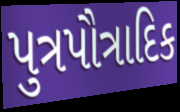
પુત્રપૌત્રાદિક